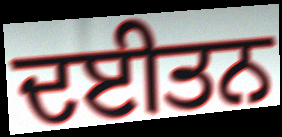
ਦਈਤਨ